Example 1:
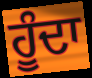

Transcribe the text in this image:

ਹੂੰਦਾ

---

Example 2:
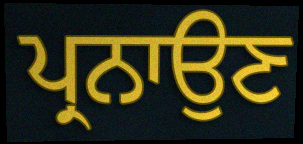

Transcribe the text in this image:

ਪ੍ਰਨਾਉਣ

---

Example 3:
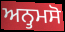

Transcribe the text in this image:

ਅਨ੍ਤਮਸੋ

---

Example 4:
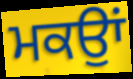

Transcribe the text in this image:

ਮਕਉਾਂ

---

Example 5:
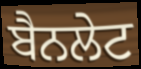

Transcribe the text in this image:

ਬੈਨਲੇਟ